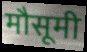
मौसूमी